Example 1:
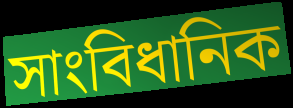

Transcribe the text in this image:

সাংবিধানিক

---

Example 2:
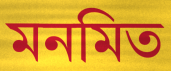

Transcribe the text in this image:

মনমিত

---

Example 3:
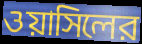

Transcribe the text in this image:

ওয়াসিলের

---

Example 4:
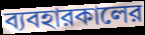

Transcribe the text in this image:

ব্যবহারকালের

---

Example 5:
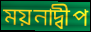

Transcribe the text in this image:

ময়নাদ্বীপ